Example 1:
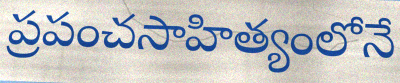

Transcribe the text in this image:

ప్రపంచసాహిత్యంలోనే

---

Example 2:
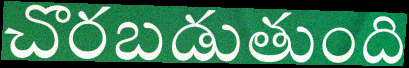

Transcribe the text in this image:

చొరబడుతుంది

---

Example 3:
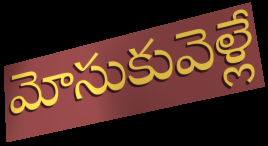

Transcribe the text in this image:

మోసుకువెళ్లే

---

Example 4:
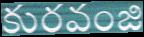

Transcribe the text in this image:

కురవంజి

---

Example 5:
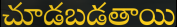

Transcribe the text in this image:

చూడబడతాయి